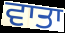
ਵਾਤਾ